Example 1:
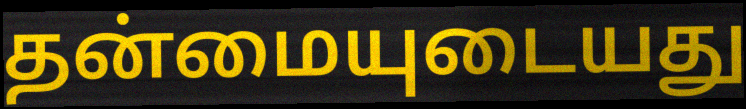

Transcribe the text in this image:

தன்மையுடையது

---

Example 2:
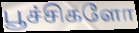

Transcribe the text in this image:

பூச்சிகளோ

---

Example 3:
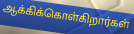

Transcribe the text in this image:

ஆக்கிக்கொள்கிறார்கள்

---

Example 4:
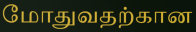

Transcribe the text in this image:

மோதுவதற்கான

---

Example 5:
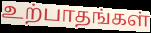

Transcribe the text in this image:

உற்பாதங்கள்